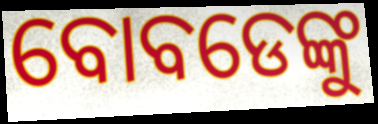
ବୋବଡେଙ୍କୁ